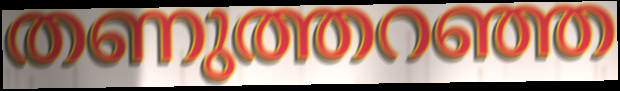
തണുത്തറഞ്ഞ